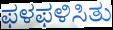
ಫಳಫಳಿಸಿತು